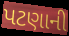
પટણાની